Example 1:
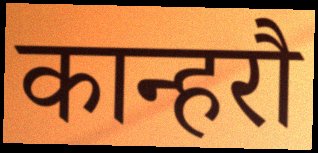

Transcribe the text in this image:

कान्हरौ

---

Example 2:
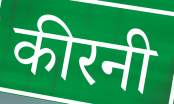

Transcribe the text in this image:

कीरनी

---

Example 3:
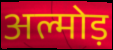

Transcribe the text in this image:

अल्मोड़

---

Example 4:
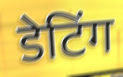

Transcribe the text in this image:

डेटिंग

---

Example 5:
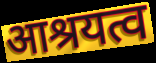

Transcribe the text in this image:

आश्रयत्व